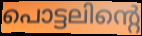
പൊട്ടലിന്റെ